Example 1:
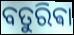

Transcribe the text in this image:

ବତୁରିଵା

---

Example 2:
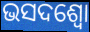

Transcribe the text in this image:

ଭସଦଶ୍ଵୋ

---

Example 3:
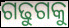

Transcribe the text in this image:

ଗଢୁଗକୁ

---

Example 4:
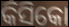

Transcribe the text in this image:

କିସିକୋ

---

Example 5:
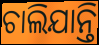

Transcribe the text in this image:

ଚାଲିଯାନ୍ତି